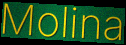
Molina